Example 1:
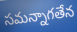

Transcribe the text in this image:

సమన్నాగతేన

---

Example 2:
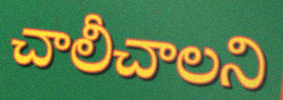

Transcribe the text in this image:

చాలీచాలని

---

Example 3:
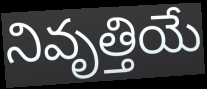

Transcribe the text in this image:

నివృత్తియే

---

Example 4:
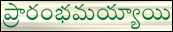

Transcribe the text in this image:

ప్రారంభమయ్యాయి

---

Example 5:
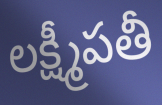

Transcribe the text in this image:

లక్ష్మీపతీ